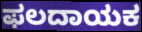
ಫಲದಾಯಕ